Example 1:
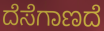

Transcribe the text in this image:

ದೆಸೆಗಾಣದೆ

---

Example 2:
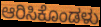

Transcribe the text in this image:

ಆರಿಸಿಕೊಂಡಳು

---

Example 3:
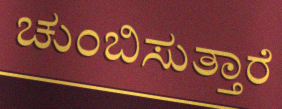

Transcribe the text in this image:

ಚುಂಬಿಸುತ್ತಾರೆ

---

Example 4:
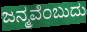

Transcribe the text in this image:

ಜನ್ಮವೆಂಬುದು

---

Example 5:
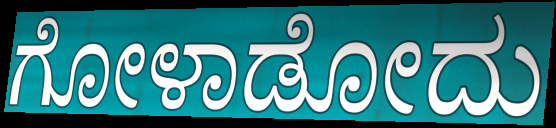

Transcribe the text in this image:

ಗೋಳಾಡೋದು